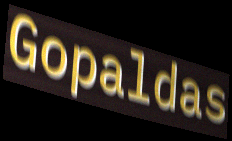
Gopaldas